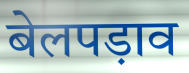
बेलपड़ाव